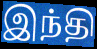
இந்தி